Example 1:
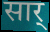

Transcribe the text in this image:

सार्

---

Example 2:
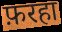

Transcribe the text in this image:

फ़रहा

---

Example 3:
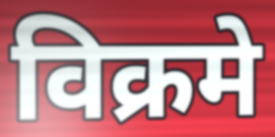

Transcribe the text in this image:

विक्रमे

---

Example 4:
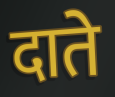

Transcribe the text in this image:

दाते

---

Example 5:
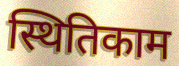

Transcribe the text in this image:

स्थितिकाम